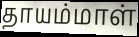
தாயம்மாள்